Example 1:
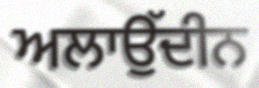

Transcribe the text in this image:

ਅਲਾਉੱਦੀਨ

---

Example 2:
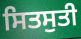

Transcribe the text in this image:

ਸਿਤਸੁਤੀ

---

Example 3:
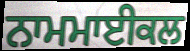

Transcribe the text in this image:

ਨਾਮਮਾਈਕਲ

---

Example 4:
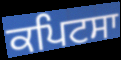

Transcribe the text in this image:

ਕਪਿਟਸਾ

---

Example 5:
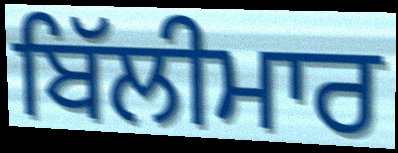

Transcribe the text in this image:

ਬਿੱਲੀਮਾਰ